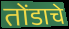
तोंडाचे